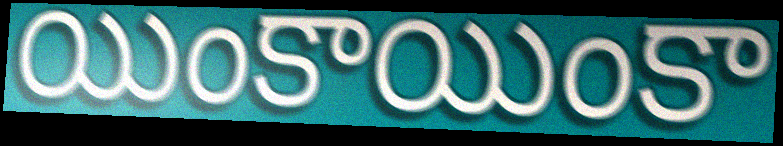
యింకాయింకా